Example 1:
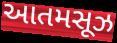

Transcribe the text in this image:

આતમસૂઝ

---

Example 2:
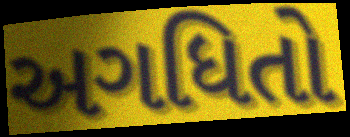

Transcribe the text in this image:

અગધિતો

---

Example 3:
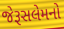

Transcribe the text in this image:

જેરૂસલેમનો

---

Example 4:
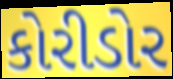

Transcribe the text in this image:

કોરીડોર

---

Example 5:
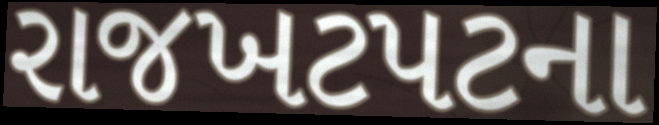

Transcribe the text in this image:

રાજખટપટના